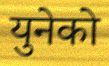
युनेको